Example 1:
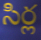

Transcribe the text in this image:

సిర్ల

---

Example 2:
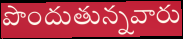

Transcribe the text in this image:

పొందుతున్నవారు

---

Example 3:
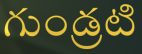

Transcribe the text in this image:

గుండ్రటి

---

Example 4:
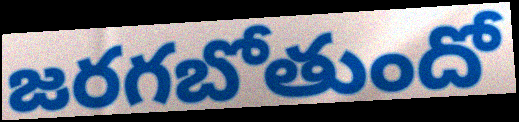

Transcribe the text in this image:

జరగబోతుందో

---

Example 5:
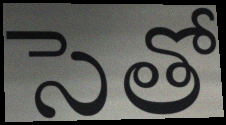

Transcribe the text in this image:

సెతో